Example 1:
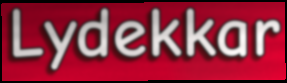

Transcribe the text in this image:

Lydekkar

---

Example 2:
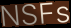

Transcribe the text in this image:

NSFs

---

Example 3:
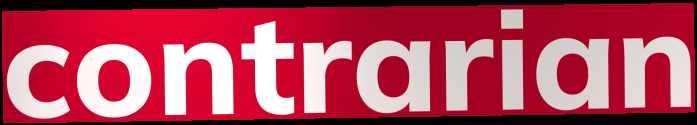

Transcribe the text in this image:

contrarian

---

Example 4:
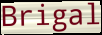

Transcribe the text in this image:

Brigal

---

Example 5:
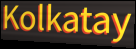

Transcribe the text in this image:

Kolkatay